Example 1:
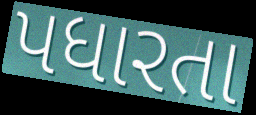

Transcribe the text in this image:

પધારતા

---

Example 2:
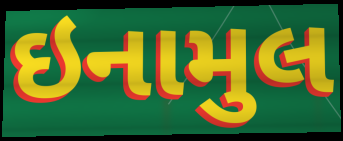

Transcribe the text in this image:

ઇનામુલ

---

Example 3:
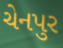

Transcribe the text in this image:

ચેનપુર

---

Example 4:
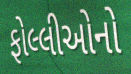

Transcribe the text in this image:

ફોલ્લીઓનો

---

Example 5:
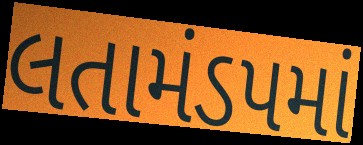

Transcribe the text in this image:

લતામંડપમાં